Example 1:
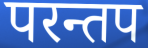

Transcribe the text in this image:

परन्तप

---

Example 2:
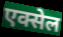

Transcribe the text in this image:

एक्सेल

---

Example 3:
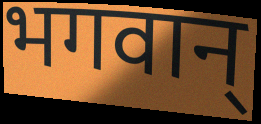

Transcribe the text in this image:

भगवान्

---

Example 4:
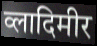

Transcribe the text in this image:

व्लादिमीर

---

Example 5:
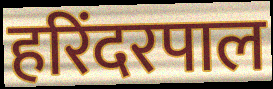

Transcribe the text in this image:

हरिंदरपाल